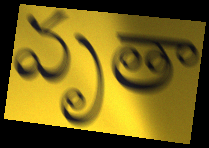
వృతా